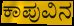
ಕಾಪುವಿನ